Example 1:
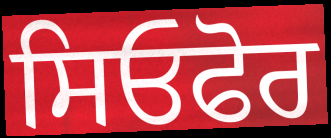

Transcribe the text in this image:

ਸਿਓਫੋਰ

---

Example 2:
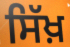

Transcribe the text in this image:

ਸਿੱਖ਼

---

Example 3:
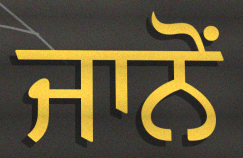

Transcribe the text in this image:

ਜਾਨੋਂ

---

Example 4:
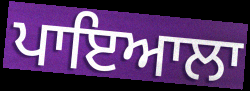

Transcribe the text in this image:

ਪਾਇਆਲਾ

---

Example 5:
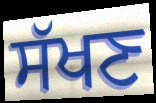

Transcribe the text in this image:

ਸੱਖਣ